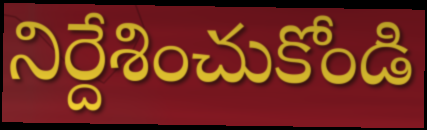
నిర్దేశించుకోండి